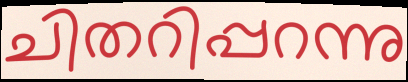
ചിതറിപ്പറന്നു